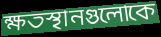
ক্ষতস্থানগুলোকে